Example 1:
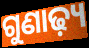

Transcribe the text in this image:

ଗୁଣାଢ଼୍ୟ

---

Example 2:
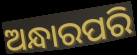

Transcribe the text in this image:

ଅନ୍ଧାରପରି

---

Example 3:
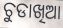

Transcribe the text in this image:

ଚୁଡାଖିଆ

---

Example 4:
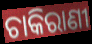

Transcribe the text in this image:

ଚାକିରାଣୀ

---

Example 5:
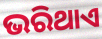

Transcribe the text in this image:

ଭରିଥାଏ